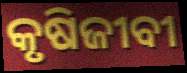
କୃଷିଜୀବୀ